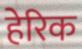
हेरिक